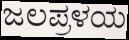
ಜಲಪ್ರಳಯ